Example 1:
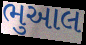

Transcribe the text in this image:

ભુઆલ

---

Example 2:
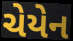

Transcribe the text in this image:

ચેયેન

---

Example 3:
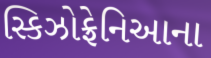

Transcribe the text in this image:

સ્કિઝોફ્રેનિઆના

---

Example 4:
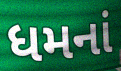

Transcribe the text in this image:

ધમનાં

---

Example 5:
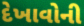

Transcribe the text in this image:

દેખાવોની